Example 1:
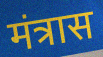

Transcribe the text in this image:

मंत्रास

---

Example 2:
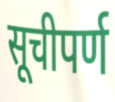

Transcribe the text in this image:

सूचीपर्ण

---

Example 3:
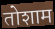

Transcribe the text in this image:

तोशाम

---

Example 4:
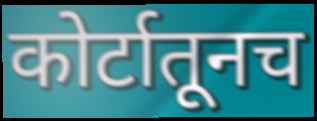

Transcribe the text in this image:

कोर्टातूनच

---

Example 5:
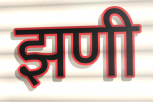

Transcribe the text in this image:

झणी